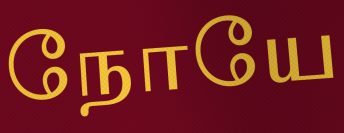
நோயே